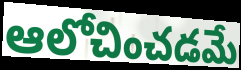
ఆలోచించడమే